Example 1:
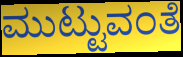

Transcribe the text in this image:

ಮುಟ್ಟುವಂತೆ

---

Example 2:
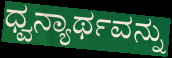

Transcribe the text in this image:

ಧ್ವನ್ಯಾರ್ಥವನ್ನು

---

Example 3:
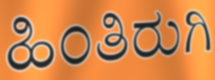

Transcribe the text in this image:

ಹಿಂತಿರುಗಿ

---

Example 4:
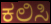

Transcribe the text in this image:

ಕಲಿಸಿ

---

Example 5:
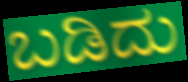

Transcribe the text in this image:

ಬಡಿದು